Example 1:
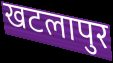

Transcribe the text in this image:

खटलापुर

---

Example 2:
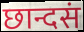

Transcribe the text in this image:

छान्दसं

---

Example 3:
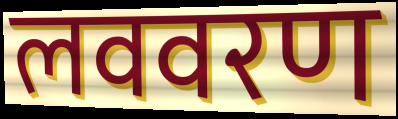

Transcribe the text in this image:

लववरण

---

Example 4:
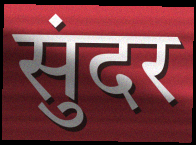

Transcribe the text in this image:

सुंदर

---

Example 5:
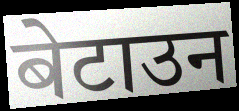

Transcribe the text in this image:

बेटाउन